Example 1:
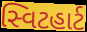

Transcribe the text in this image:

સ્વિટહાર્ટ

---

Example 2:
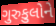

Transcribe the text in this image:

ગુરુકુલોને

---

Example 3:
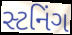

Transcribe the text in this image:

સ્ટનિંગ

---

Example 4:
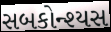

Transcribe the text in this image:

સબકોન્શ્યસ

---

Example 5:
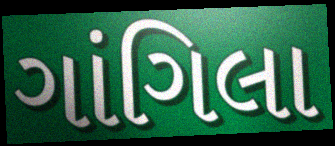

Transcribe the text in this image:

ગાંગિલા